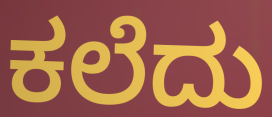
ಕಲೆದು